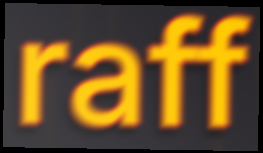
raff